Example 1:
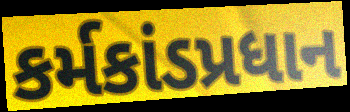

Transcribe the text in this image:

કર્મકાંડપ્રધાન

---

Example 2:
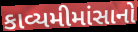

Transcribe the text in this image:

કાવ્યમીમાંસાનો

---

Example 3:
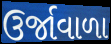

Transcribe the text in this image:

ઉર્જાવાળા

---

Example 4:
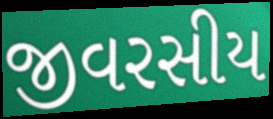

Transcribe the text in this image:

જીવરસીય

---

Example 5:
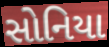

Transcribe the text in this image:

સોનિયા